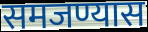
समजण्यास